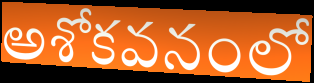
అశోకవనంలో